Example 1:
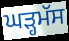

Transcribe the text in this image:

ਘੜ੍ਹਮੱਸ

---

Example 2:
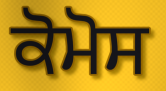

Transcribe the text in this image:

ਕੋਮੋਸ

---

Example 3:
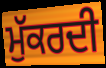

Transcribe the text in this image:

ਮੁੱਕਰਦੀ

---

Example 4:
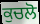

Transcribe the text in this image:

ਕੁਚਲੋ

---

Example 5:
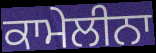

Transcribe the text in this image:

ਕਾਮੇਲੀਨਾ